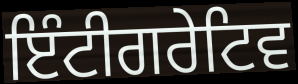
ਇੰਟੀਗਰੇਟਿਵ